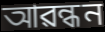
আৱন্ধন